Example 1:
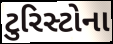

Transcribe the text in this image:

ટુરિસ્ટોના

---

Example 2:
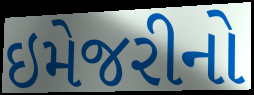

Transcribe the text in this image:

ઇમેજરીનો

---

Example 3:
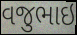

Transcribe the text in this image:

વજુભાઇ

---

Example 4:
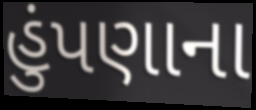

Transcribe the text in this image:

હુંપણાના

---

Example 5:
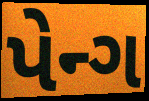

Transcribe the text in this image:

પેન્ગ